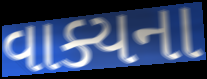
વાક્યના